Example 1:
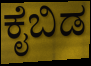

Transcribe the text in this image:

ಕೈಬಿಡ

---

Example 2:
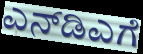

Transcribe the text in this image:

ಎನ್‌ಡಿಎಗೆ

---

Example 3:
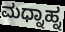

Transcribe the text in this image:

ಮಧ್ನಾಹ್ನ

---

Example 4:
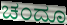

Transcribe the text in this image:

ಚಂದೂ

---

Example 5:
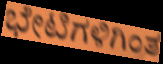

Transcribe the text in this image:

ಭೇಟಿಗಳಿಗಿಂತ